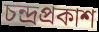
চন্দ্ৰপ্ৰকাশ